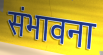
संभावना